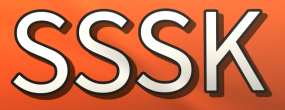
SSSK